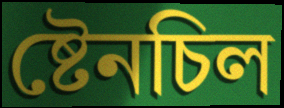
ষ্টেনচিল